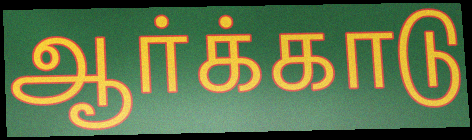
ஆர்க்காடு